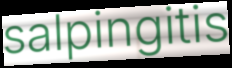
salpingitis